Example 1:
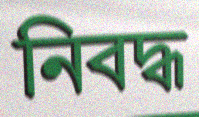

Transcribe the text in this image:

নিবদ্ধ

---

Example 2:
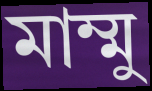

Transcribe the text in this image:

মাম্মু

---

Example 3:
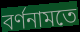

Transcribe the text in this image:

বর্ণনামতে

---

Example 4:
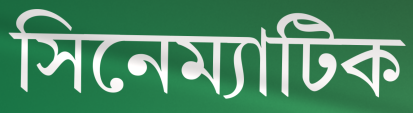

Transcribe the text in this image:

সিনেম্যাটিক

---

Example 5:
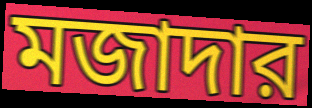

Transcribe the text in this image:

মজাদার